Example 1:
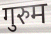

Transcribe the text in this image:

गुरुम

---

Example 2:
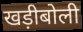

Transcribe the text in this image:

खड़ीबोली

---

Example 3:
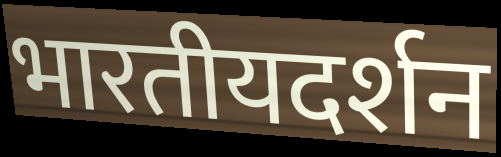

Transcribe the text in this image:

भारतीयदर्शन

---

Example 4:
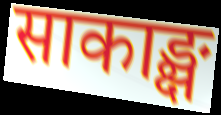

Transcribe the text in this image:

साकाङ्क्ष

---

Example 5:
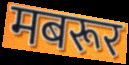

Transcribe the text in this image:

मबरूर